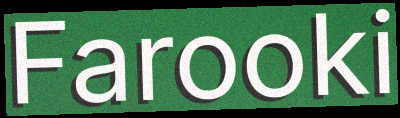
Farooki